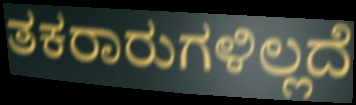
ತಕರಾರುಗಳಿಲ್ಲದೆ